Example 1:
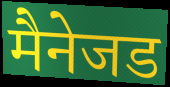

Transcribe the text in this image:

मैनेजड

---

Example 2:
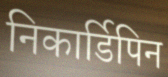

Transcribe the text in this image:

निकार्डिपिन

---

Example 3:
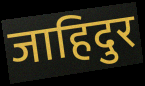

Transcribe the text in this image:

जाहिदुर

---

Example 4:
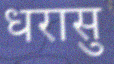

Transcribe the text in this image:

धरासु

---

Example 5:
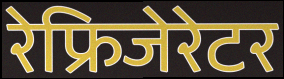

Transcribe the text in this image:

रेफ्रिजेरेटर